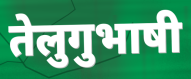
तेलुगुभाषी